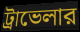
ট্রাভেলার